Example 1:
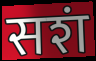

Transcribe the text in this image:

सशं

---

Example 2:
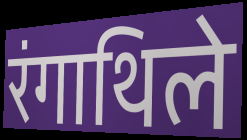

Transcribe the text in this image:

रंगाथिले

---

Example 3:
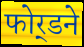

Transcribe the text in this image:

फोर्डने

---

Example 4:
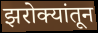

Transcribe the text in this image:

झरोक्यांतून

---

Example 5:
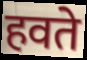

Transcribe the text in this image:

हवते